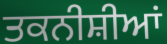
ਤਕਨੀਸ਼ੀਆਂ